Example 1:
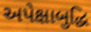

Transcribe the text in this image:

અપેક્ષાબુદ્ધિ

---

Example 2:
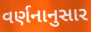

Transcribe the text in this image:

વર્ણનાનુસાર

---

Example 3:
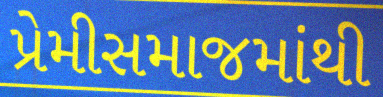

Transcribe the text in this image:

પ્રેમીસમાજમાંથી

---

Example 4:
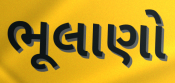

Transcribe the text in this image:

ભૂલાણો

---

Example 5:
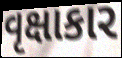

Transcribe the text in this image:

વૃક્ષાકાર